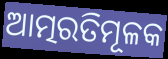
ଆତ୍ମରତିମୂଳକ